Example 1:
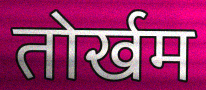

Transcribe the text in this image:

तोर्खम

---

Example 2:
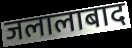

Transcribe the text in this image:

जलालाबाद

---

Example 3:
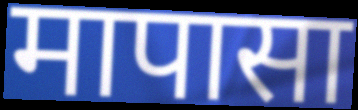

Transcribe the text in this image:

मापासा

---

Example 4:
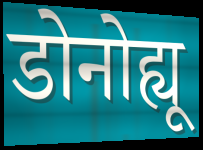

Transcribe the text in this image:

डोनोह्यू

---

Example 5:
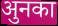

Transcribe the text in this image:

अुनका